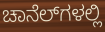
ಚಾನೆಲ್‍ಗಳಲ್ಲಿ